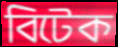
বিটেক